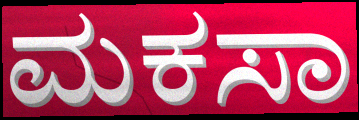
ಮಕಸಾ